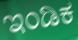
ಇಂಡಿಕ